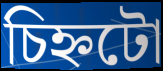
চিহ্নটো